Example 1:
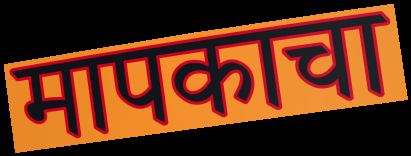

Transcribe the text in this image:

मापकाचा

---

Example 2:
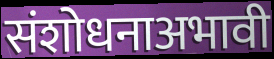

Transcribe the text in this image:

संशोधनाअभावी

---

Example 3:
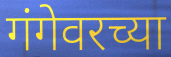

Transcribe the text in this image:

गंगेवरच्या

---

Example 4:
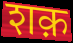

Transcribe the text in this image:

शक़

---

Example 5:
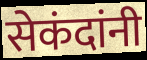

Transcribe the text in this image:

सेकंदांनी